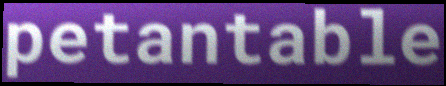
petantable